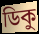
ডিকু